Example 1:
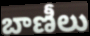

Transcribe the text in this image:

బాణీలు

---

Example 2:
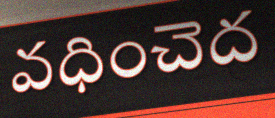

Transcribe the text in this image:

వధించెద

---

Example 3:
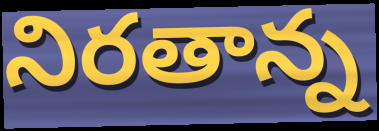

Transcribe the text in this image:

నిరతాన్న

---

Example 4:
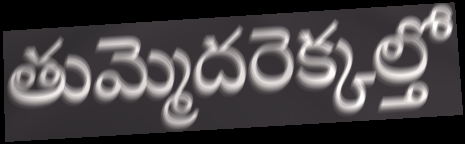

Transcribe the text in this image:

తుమ్మెదరెక్కల్తో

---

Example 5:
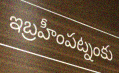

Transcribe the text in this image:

ఇబ్రహీంపట్నంకు